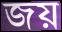
জয়